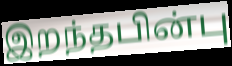
இறந்தபின்பு